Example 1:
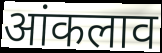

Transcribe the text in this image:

आंकलाव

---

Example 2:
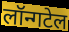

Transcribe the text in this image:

लॉन्गटेल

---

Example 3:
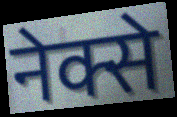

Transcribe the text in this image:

नेक्से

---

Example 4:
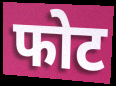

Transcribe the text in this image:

फोट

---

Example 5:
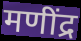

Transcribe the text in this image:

मणींद्र